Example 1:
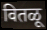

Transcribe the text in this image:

वितळू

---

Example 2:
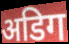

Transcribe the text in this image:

अडिग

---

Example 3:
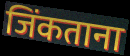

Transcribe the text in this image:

जिंकताना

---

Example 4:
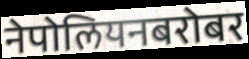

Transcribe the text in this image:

नेपोलियनबरोबर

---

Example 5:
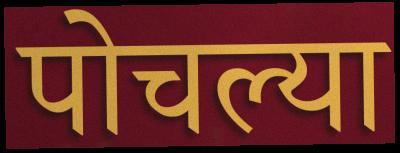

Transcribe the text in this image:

पोचल्या